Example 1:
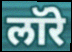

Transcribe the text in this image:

लॉरे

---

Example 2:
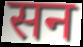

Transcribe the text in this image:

सन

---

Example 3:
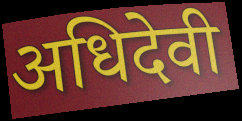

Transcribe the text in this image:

अधिदेवी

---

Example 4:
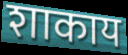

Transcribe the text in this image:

शाकाय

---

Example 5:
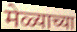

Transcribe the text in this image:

मेळ्याच्या